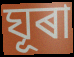
ঘূৰা